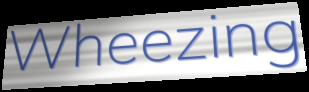
Wheezing